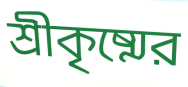
শ্রীকৃষ্মের